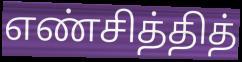
எண்சித்தித்